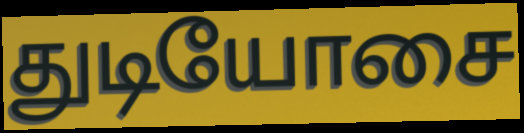
துடியோசை